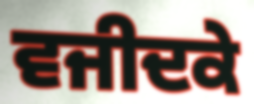
ਵਜੀਦਕੇ